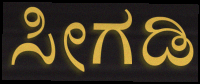
ಸೀಗಡಿ